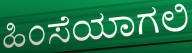
ಹಿಂಸೆಯಾಗಲಿ